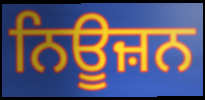
ਨਿਊਜ਼ਨ